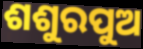
ଶଶୁରପୁଅ